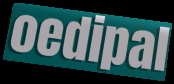
oedipal